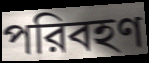
পরিবহণ